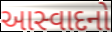
આસ્વાદનો